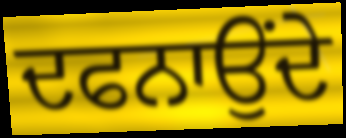
ਦਫਨਾਉਂਦੇ